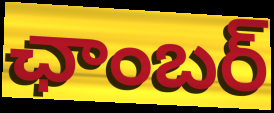
ఛాంబర్